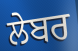
ਲੇਬਰ